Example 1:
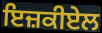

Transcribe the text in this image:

ਇਜ਼ਕੀਏਲ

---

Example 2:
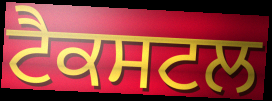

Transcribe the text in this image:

ਟੈਕਸਟਲ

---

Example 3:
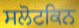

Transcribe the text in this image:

ਸਲੋਟਕਿਨ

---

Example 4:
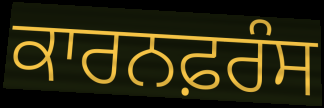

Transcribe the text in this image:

ਕਾਰਨਫ਼ਰੰਸ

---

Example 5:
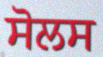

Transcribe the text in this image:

ਸੋਲਸ